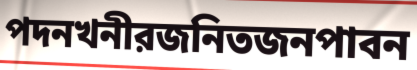
পদনখনীরজনিতজনপাবন